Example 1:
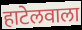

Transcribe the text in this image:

हाटेलवाला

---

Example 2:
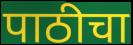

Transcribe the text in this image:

पाठीचा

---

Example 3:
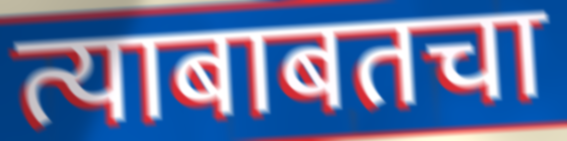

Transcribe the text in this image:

त्याबाबतचा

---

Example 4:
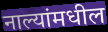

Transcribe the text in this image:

नाल्यांमधील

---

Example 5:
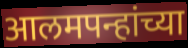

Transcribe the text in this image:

आलमपन्हांच्या